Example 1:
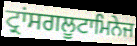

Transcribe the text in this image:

ਟ੍ਰਾਂਸਗਲੂਟਾਮਿਨੇਜ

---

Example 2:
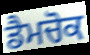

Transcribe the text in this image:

ਡੈਮਚੋਕ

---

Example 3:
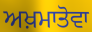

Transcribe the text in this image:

ਅਖ਼ਮਾਤੋਵਾ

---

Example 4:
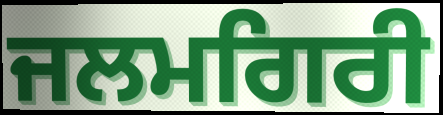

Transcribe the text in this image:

ਜਲਮਗਿਰੀ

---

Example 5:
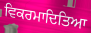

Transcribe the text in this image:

ਵਿਕਰਮਾਦਿਤਿਆ